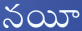
నయీ